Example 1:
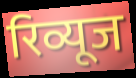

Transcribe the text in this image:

रिव्यूज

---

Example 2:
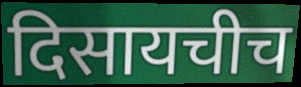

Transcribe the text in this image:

दिसायचीच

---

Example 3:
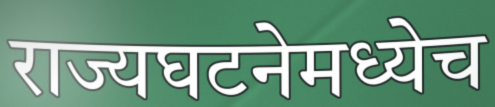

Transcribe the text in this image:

राज्यघटनेमध्येच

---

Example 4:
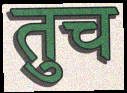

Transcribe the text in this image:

तुच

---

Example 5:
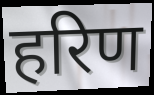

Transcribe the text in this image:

हरिण